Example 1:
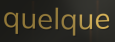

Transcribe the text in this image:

quelque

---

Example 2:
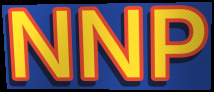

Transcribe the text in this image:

NNP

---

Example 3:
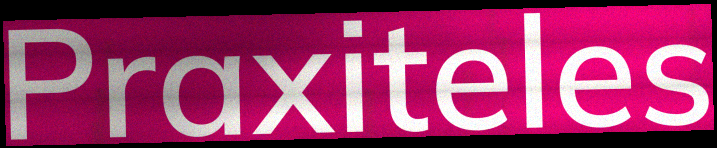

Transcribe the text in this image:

Praxiteles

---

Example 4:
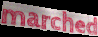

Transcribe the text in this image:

marched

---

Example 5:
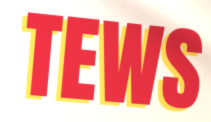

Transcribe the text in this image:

TEWS